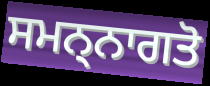
ਸਮਨ੍ਨਾਗਤੋ